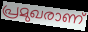
പ്രമുഖരാണ്